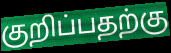
குறிப்பதற்கு